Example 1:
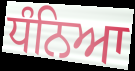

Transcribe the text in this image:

ਧੰਨਿਆ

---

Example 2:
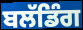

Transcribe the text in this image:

ਬਲੱਡਿੰਗ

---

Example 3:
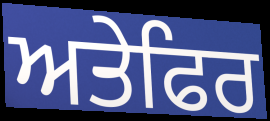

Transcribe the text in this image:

ਅਤੇਫਿਰ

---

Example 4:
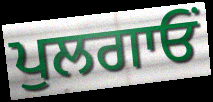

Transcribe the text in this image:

ਪੁਲਗਾਓਂ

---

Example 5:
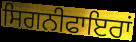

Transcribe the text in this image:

ਸਿਗਨੀਫਾਇਰਾਂ